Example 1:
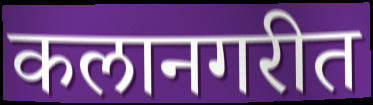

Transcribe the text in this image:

कलानगरीत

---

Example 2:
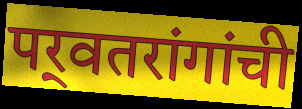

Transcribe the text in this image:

पर्वतरांगांची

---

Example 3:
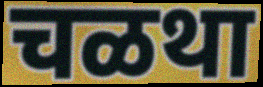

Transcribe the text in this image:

चळथा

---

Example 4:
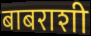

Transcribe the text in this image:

बाबराशी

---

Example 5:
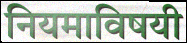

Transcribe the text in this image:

नियमाविषयी